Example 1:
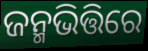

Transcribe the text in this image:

ଜନ୍ମଭିତ୍ତିରେ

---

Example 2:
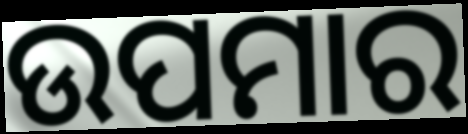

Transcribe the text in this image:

ଉପମାର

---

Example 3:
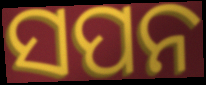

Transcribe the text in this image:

ସପନ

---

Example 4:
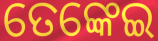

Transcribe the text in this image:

ତେଙ୍କେଇ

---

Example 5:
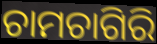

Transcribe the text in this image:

ଚାମଚାଗିରି